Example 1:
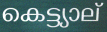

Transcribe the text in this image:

കെട്ട്യാല്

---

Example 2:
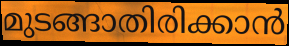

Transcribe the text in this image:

മുടങ്ങാതിരിക്കാൻ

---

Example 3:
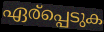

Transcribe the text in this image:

ഏര്പ്പെടുക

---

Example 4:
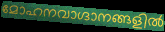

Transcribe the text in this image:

മോഹനവാഗ്ദാനങ്ങളിൽ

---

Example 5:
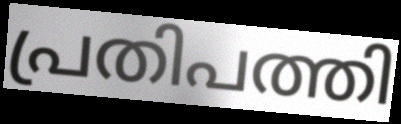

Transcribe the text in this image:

പ്രതിപത്തി